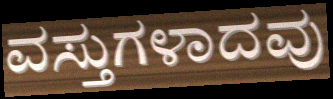
ವಸ್ತುಗಳಾದವು